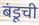
बंडूची